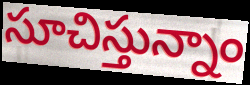
సూచిస్తున్నాం